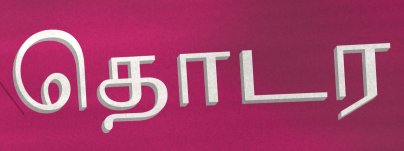
தொடர